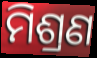
ମିଶ୍ରଣ